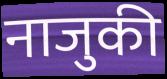
नाजुकी